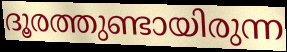
ദൂരത്തുണ്ടായിരുന്ന